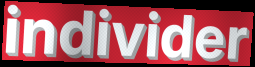
individer